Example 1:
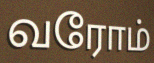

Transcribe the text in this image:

வரோம்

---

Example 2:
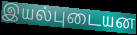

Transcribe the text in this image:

இயல்புடையன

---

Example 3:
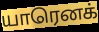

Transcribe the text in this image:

யாரெனக்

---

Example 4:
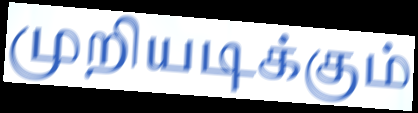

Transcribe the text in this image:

முறியடிக்கும்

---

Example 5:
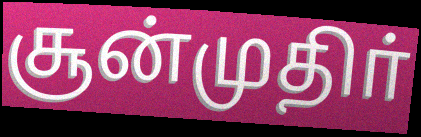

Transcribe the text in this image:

சூன்முதிர்